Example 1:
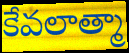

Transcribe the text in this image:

కేవలాత్మా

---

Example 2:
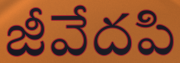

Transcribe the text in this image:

జీవేదపి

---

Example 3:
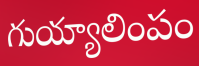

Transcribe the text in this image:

గుయ్యాలింపం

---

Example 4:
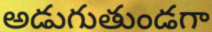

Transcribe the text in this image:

అడుగుతుండగా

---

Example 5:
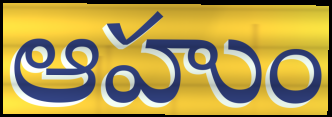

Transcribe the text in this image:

ఆహుం